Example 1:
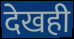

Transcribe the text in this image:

देखही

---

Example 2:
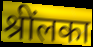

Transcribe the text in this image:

श्रींलका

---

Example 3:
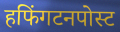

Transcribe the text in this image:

हफिंगटनपोस्ट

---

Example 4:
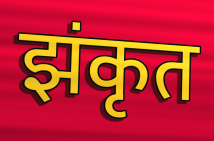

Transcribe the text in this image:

झंकृत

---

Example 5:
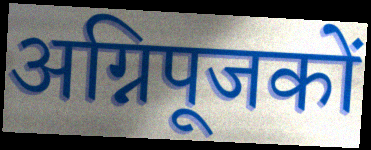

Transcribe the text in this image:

अग्निपूजकों